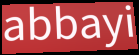
abbayi